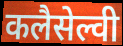
कलैसेल्वी